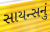
સાયન્સનું